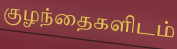
குழந்தைகளிடம்